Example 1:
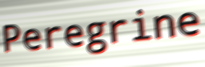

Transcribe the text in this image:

Peregrine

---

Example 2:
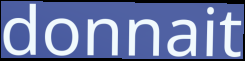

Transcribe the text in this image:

donnait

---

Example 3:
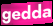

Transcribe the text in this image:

gedda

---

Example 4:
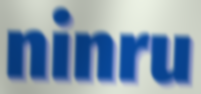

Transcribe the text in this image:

ninru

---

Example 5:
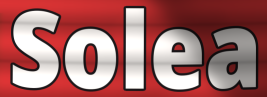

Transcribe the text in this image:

Solea